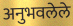
अनुभवलेले